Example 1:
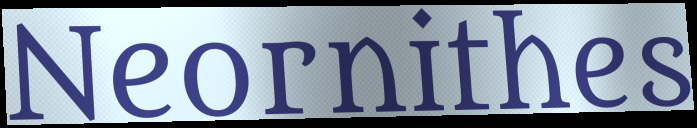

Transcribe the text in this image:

Neornithes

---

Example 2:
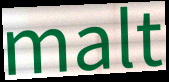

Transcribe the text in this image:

malt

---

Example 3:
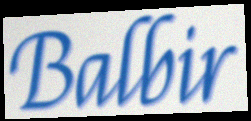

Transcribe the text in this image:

Balbir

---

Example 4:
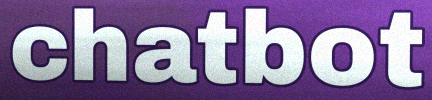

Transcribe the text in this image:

chatbot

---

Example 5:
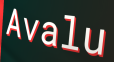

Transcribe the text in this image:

Avalu